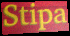
Stipa